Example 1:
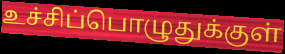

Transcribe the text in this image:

உச்சிப்பொழுதுக்குள்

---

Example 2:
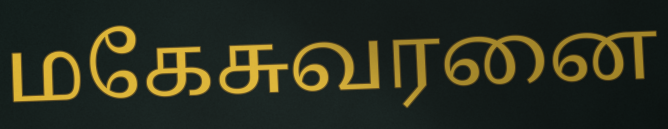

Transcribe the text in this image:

மகேசுவரனை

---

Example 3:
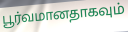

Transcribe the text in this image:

பூர்வமானதாகவும்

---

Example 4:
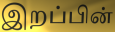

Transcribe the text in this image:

இறப்பின்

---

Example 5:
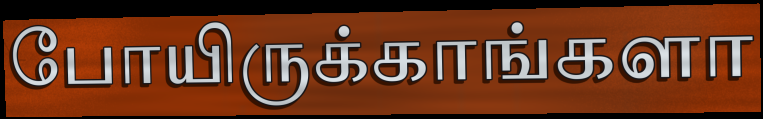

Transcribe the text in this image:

போயிருக்காங்களா